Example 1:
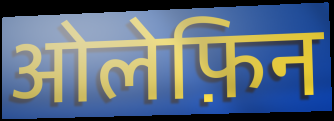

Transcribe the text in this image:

ओलेफ़िन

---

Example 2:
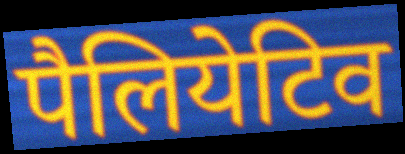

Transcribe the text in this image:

पैलियेटिव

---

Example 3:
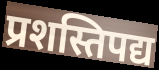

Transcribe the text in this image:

प्रशस्तिपद्य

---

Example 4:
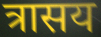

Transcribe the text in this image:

त्रासय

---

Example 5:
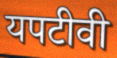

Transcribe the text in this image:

यपटीवी